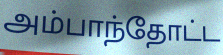
அம்பாந்தோட்ட